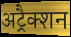
अट्रैक्शन